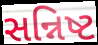
સન્નિષ્ટ